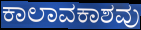
ಕಾಲಾವಕಾಶವು